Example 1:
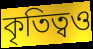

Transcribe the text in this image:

কৃতিত্বও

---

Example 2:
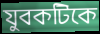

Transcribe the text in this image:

যুবকটিকে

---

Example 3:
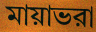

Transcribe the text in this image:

মায়াভরা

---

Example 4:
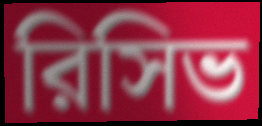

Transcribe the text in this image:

রিসিভ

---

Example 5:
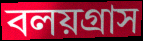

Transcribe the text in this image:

বলয়গ্রাস